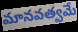
మానవత్వమే